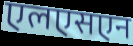
एलएसएन